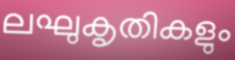
ലഘുകൃതികളും